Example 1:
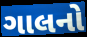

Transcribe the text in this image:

ગાલનો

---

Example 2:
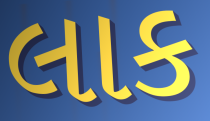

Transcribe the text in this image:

લાક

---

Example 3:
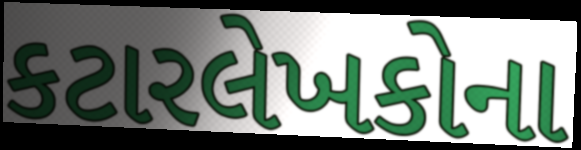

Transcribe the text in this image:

કટારલેખકોના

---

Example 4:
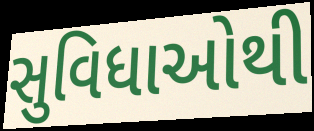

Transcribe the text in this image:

સુવિધાઓથી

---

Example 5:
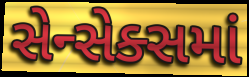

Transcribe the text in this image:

સેન્સેક્સમાં